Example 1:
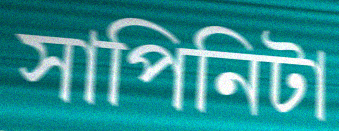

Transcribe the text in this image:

সাপিনিটা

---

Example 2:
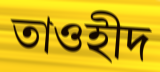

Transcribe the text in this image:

তাওহীদ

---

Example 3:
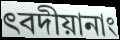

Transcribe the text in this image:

ৎবদীয়ানাং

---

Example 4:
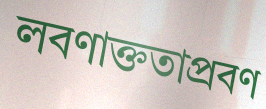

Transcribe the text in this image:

লবণাক্ততাপ্রবণ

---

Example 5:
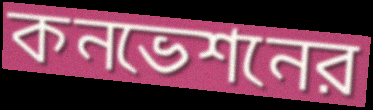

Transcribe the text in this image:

কনভেশনের